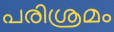
പരിശ്രമം